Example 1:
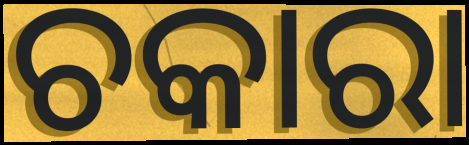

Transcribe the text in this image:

ଚକାରା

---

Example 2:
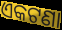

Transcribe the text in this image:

ଏକଟଣା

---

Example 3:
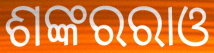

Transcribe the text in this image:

ଶଙ୍କରରାଓ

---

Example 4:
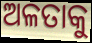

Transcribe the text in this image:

ଅଳତାକୁ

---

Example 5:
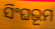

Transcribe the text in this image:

ସିଂଘଭୂମ